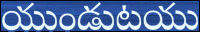
యుండుటయు